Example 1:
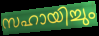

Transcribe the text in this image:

സഹായിച്ചും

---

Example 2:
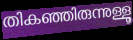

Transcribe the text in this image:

തികഞ്ഞിരുന്നുള്ളൂ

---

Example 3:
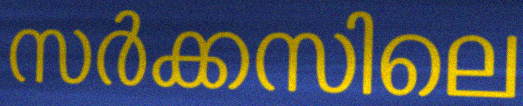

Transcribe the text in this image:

സർക്കസിലെ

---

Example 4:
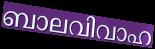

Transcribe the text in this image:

ബാലവിവാഹ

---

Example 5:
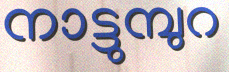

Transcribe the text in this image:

നാട്ടുമ്പുറ